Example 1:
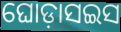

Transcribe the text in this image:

ଘୋଡ଼ାସଇସ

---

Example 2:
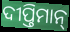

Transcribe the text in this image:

ଦୀପ୍ତିମାନ୍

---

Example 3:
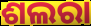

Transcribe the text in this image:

ଶଲରା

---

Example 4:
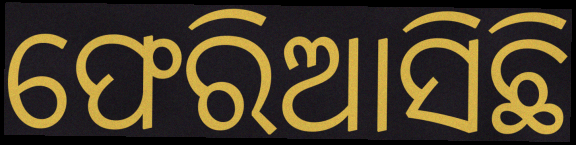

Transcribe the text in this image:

ଫେରିଆସିଛି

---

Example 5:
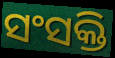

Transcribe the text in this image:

ସଂସକ୍ତି